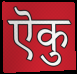
ऎकु